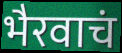
भैरवाचं